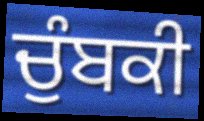
ਚੁੰਬਕੀ